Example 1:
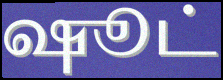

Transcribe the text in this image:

ஷூட்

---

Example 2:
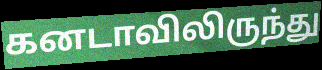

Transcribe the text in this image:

கனடாவிலிருந்து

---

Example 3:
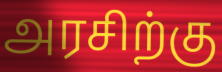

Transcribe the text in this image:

அரசிற்கு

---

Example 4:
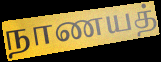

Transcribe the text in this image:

நாணயத்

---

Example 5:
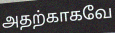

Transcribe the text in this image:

அதற்காகவே